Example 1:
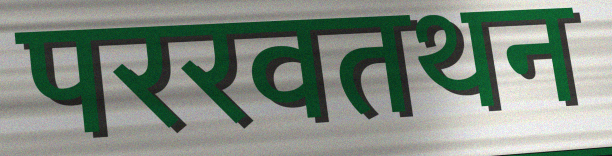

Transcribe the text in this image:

पररवतथन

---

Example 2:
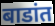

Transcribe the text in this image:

बाडांत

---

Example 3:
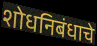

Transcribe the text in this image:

शोधनिबंधाचे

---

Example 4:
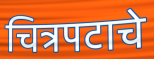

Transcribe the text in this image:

चित्रपटाचे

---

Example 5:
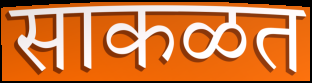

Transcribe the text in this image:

साकळत